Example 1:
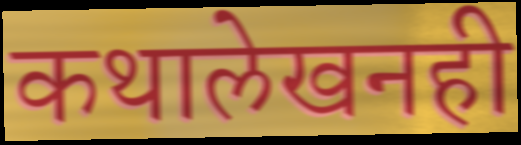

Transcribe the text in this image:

कथालेखनही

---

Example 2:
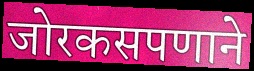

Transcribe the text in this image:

जोरकसपणाने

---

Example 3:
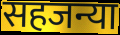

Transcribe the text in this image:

सहजन्या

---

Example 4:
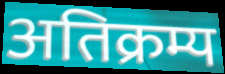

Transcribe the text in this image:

अतिक्रम्य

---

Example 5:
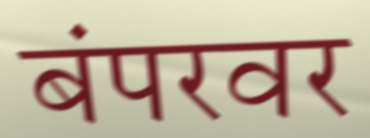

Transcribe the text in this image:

बंपरवर